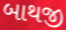
બાથજી